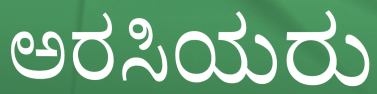
ಅರಸಿಯರು